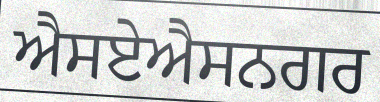
ਐਸਏਐਸਨਗਰ